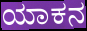
ಯಾಕನ